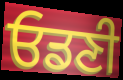
ਓਡਣੀ